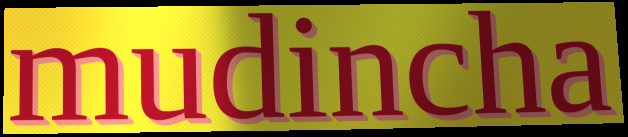
mudincha